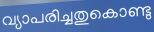
വ്യാപരിച്ചതുകൊണ്ടു